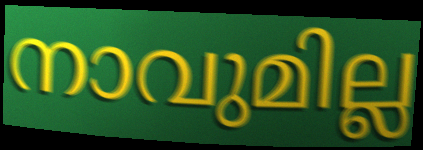
നാവുമില്ല